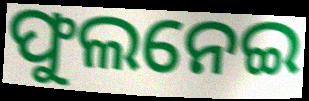
ଫୁଲନେଇ